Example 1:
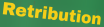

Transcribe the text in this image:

Retribution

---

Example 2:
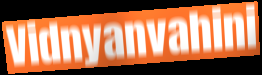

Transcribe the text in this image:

Vidnyanvahini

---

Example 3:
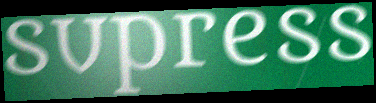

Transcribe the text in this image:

supress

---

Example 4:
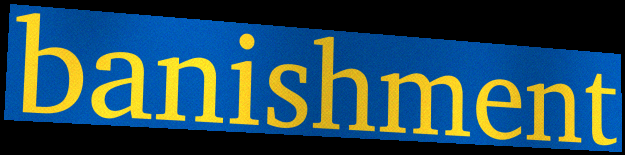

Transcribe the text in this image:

banishment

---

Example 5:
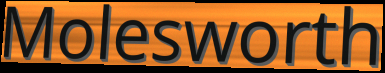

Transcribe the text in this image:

Molesworth